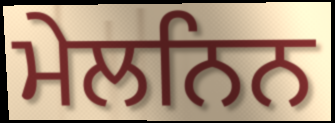
ਮੇਲਨਿਨ